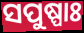
ସପୁଷ୍ପାଃ